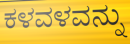
ಕಳವಳವನ್ನು